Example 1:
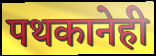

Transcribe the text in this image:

पथकानेही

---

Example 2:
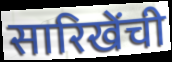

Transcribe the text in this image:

सारिखेंची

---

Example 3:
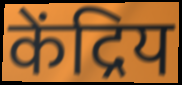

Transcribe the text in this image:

केंद्रिय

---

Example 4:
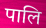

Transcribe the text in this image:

पालि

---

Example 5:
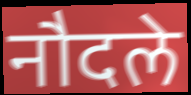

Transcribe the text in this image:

नौदले